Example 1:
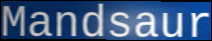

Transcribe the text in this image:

Mandsaur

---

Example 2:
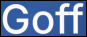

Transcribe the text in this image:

Goff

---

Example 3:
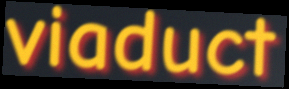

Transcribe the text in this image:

viaduct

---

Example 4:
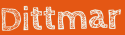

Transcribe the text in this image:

Dittmar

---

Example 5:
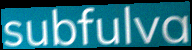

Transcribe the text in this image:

subfulva